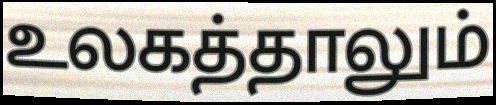
உலகத்தாலும்